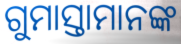
ଗୁମାସ୍ତାମାନଙ୍କ